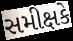
સમીક્ષકે